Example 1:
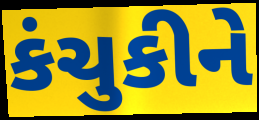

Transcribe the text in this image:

કંચુકીને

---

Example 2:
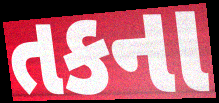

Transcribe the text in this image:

તકના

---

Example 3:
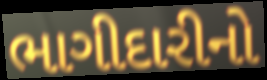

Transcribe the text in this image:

ભાગીદારીનો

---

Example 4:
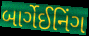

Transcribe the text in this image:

બાર્ગેઈનિંગ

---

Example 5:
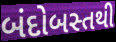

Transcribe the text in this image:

બંદોબસ્તથી